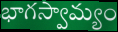
భాగస్వామ్యం